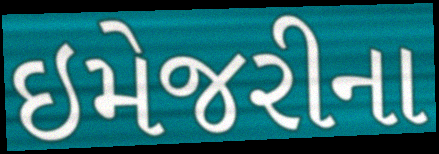
ઇમેજરીના